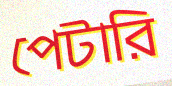
পেটারি